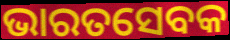
ଭାରତସେବକ